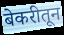
बेकरीतून